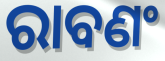
ରାବଣଂ